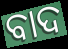
ବାଦ